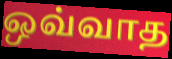
ஒவ்வாத